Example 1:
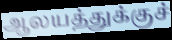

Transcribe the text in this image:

ஆலயத்துக்குச்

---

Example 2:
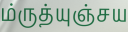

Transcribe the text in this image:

ம்ருத்யுஞ்சய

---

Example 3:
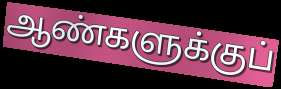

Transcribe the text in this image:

ஆண்களுக்குப்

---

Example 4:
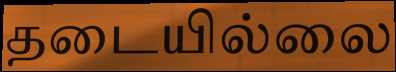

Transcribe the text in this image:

தடையில்லை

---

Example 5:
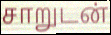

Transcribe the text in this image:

சாறுடன்